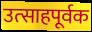
उत्‍साहपूर्वक